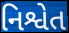
નિશ્વેત